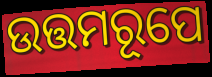
ଉତ୍ତମରୂପେ